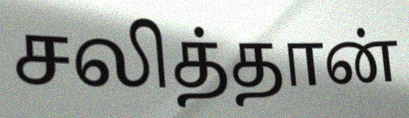
சலித்தான்